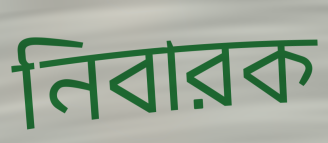
নিবারক